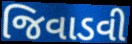
જિવાડવી